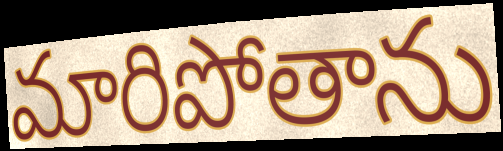
మారిపోతాను